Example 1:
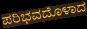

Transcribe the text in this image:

ಪರಿಭವದೊಳಾದ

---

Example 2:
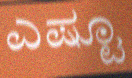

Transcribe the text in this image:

ಎಷ್ಟೂ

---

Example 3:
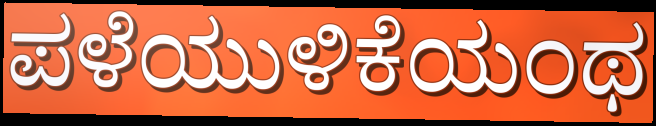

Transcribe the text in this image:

ಪಳೆಯುಳಿಕೆಯಂಥ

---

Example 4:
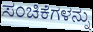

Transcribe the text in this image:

ಸಂಚಿಕೆಗಳನ್ನು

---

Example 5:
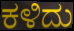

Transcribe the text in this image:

ಕಳಿದು